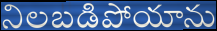
నిలబడిపోయాను